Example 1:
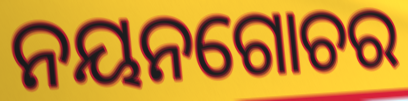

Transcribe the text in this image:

ନୟନଗୋଚର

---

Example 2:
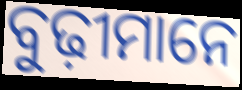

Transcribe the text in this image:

ବୁଢ଼ୀମାନେ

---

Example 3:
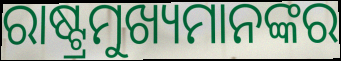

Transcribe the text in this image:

ରାଷ୍ଟ୍ରମୁଖ୍ୟମାନଙ୍କର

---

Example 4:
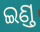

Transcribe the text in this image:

ଇଣ୍ଡ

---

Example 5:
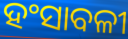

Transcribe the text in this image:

ହଂସାବଳୀ